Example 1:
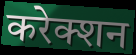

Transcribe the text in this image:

करेक्शन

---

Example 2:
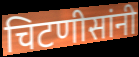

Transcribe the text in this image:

चिटणीसांनी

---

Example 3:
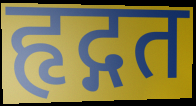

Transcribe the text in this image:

हृद्गत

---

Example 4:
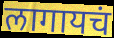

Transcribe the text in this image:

लागायचं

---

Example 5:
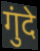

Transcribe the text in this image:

गुंदे